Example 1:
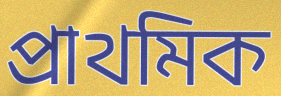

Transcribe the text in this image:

প্ৰাথমিক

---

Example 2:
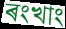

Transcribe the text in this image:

ৰংখাং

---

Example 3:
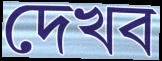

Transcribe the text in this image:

দেখব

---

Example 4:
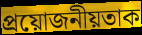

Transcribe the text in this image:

প্ৰয়োজনীয়তাক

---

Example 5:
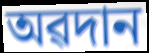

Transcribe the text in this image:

অৱদান